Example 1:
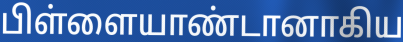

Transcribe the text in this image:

பிள்ளையாண்டானாகிய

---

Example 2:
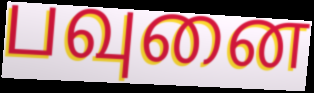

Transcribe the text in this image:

பவுனை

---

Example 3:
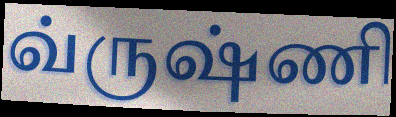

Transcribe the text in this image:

வ்ருஷ்ணி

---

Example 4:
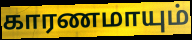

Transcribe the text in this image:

காரணமாயும்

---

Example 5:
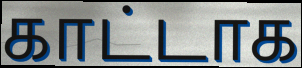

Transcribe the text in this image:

காட்டாக